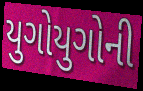
યુગોયુગોની